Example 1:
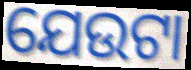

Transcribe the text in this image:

ଯେଉଟା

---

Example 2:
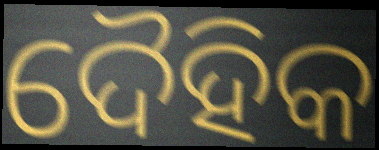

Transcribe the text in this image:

ଦୈହିକ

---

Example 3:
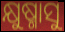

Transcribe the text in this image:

କ୍ଷୁଷ୍ମାସୁ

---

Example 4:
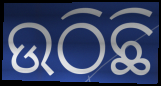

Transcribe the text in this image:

ଉଠିଛି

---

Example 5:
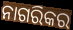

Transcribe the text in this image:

ନାଗରିକର